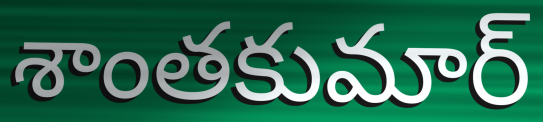
శాంతకుమార్